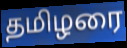
தமிழரை